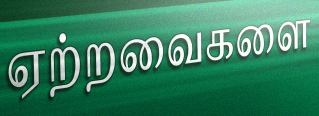
ஏற்றவைகளை